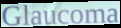
Glaucoma